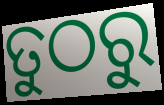
ତୁଠରୁ